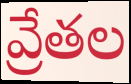
వ్రేతల